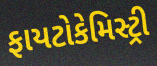
ફાયટોકેમિસ્ટ્રી